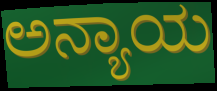
ಅನ್ಯಾಯ